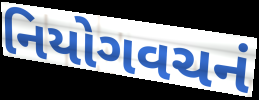
નિયોગવચનં